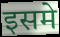
इसमे